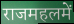
राजमहलमें